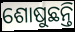
ଶୋଷୁଛନ୍ତି